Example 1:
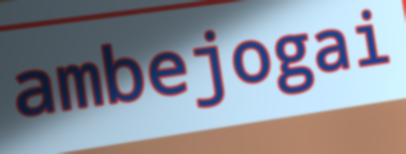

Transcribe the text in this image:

ambejogai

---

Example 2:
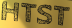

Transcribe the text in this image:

HTST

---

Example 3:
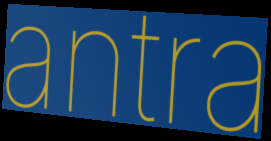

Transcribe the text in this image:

antra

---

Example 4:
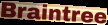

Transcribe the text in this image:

Braintree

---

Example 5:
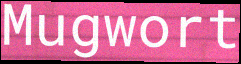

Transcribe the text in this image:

Mugwort